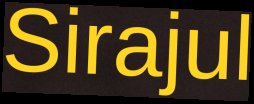
Sirajul